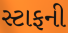
સ્ટાફની